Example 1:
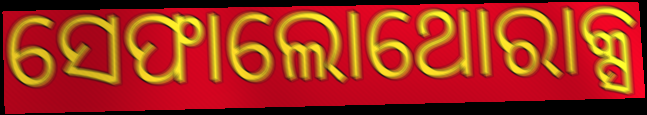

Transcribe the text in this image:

ସେଫାଲୋଥୋରାକ୍ସ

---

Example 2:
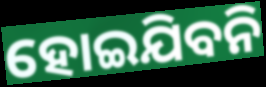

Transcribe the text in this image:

ହୋଇଯିବନି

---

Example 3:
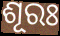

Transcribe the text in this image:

ଶୂରଃ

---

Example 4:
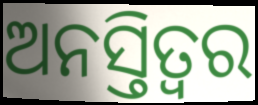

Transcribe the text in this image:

ଅନସ୍ତିତ୍ୱର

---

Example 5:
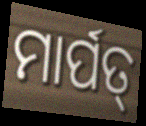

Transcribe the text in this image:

ମାର୍ପତ୍